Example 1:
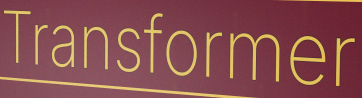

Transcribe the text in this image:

Transformer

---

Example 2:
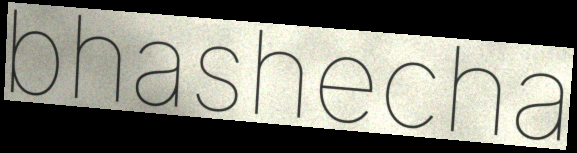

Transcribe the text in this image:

bhashecha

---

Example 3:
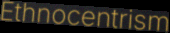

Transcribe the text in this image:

Ethnocentrism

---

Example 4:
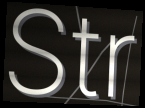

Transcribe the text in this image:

Str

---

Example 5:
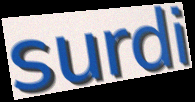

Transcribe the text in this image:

surdi